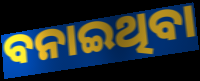
ବନାଇଥିବା